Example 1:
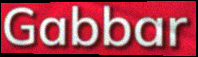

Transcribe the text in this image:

Gabbar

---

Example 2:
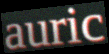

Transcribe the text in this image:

auric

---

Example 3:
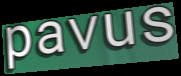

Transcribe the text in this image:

pavus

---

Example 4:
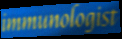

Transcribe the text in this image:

immunologist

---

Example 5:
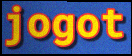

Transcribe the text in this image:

jogot